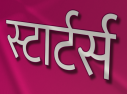
स्टार्टर्स